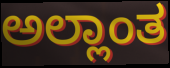
ಅಲ್ಲಾಂತ